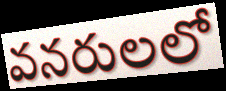
వనరులలో